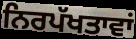
ਨਿਰਪੱਖਤਾਵਾਂ